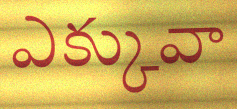
ఎక్కువా